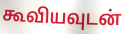
கூவியவுடன்